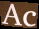
Ac